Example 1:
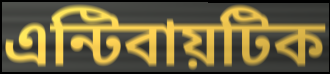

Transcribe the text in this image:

এন্টিবায়টিক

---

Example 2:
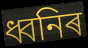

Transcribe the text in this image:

ধ্বনিৰ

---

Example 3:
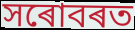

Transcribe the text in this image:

সৰোবৰত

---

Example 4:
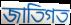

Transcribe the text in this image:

জাতিগত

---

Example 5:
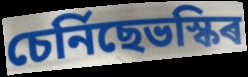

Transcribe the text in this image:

চেৰ্নিছেভস্কিৰ